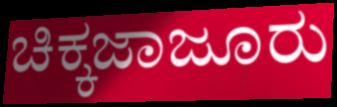
ಚಿಕ್ಕಜಾಜೂರು